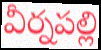
వీర్నపల్లి